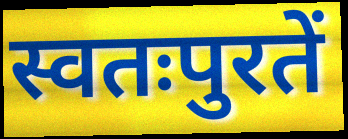
स्वतःपुरतें